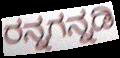
ರನ್ನಗನ್ನಡಿ